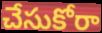
చేసుకోరా